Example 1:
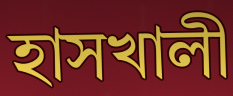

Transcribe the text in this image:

হাসখালী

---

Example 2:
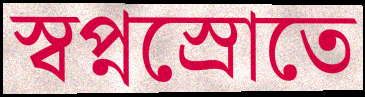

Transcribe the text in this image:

স্বপ্নস্রোতে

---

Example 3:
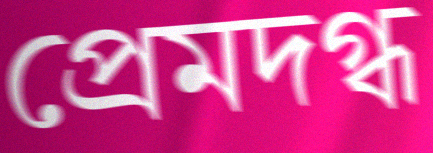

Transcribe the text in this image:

প্রেমদগ্ধ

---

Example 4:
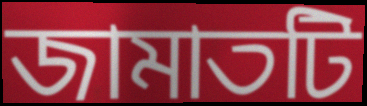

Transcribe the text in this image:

জামাতটি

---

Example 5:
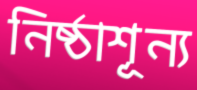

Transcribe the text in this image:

নিষ্ঠাশূন্য